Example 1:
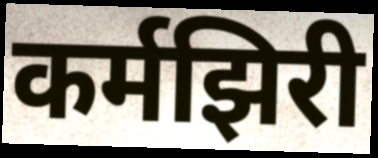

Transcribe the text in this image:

कर्मझिरी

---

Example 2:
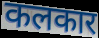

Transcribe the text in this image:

कलकार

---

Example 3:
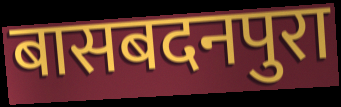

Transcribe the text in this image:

बासबदनपुरा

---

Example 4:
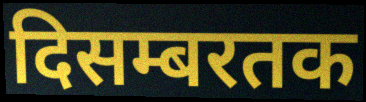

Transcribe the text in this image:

दिसम्बरतक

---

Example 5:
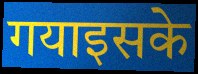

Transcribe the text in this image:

गयाइसके